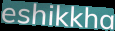
eshikkha